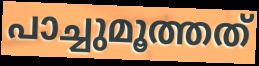
പാച്ചുമൂത്തത്